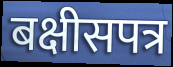
बक्षीसपत्र